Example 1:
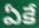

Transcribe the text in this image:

ఏకే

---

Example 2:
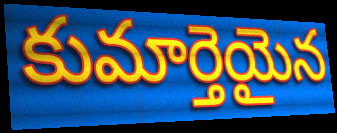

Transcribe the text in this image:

కుమార్తెయైన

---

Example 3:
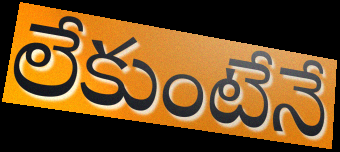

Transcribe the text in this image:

లేకుంటేనే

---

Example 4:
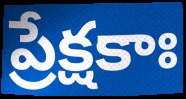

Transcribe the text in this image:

ప్రేక్షకాః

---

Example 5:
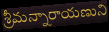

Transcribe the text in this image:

శ్రీమన్నారాయణుని